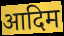
आदिम